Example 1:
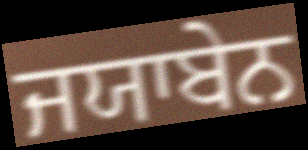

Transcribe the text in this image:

ਜਯਾਬੇਨ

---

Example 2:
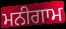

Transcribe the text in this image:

ਮਨੀਗਾਮ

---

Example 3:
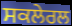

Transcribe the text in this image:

ਸਕਲੇਰਲ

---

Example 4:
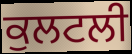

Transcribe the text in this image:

ਕੁਲਟਲੀ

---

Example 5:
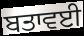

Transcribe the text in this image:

ਬਤਾਵਈ